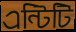
এন্টিটি